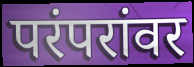
परंपरांवर